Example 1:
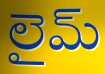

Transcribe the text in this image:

లైమ్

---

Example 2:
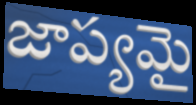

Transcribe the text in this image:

జాప్యమై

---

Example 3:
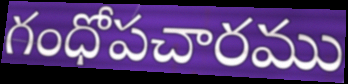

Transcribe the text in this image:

గంధోపచారము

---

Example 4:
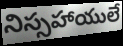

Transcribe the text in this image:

నిస్సహాయులే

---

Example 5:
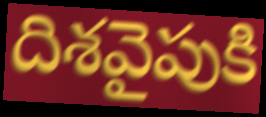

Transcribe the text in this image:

దిశవైపుకి